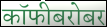
कॉफीबरोबर